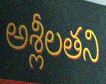
అశ్లీలతని